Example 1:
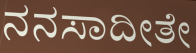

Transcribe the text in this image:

ನನಸಾದೀತೇ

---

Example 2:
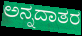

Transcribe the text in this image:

ಅನ್ನದಾತರ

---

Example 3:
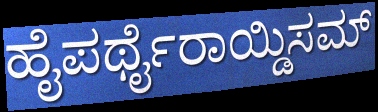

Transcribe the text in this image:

ಹೈಪರ್ಥೈರಾಯ್ಡಿಸಮ್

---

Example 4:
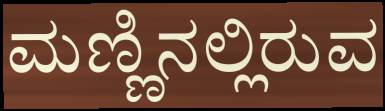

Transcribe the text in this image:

ಮಣ್ಣಿನಲ್ಲಿರುವ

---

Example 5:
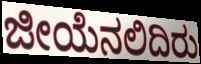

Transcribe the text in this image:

ಜೀಯೆನಲಿದಿರು